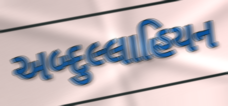
અબ્દુલ્લાહિયન